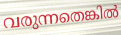
വരുന്നതെങ്കിൽ